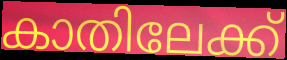
കാതിലേക്ക്